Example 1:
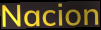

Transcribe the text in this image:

Nacion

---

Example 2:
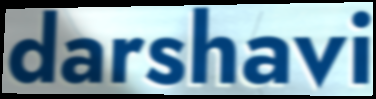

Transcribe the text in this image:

darshavi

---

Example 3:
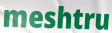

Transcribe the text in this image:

meshtru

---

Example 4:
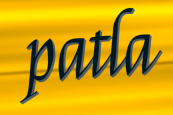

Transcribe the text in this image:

patla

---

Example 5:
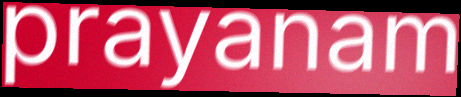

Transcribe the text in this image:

prayanam